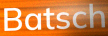
Batsch